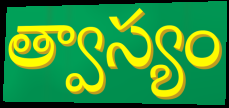
త్వాస్యం